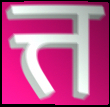
त्त